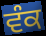
ਵੰਕ